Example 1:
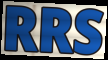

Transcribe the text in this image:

RRS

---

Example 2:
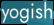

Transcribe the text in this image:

yogish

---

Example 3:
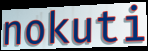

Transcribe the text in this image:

nokuti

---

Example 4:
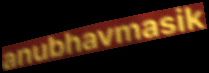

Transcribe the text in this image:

anubhavmasik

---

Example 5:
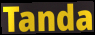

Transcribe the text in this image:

Tanda